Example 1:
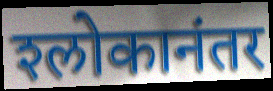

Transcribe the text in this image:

श्लोकानंतर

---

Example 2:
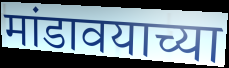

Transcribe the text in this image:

मांडावयाच्या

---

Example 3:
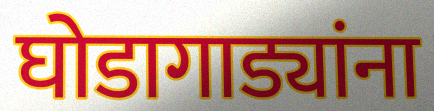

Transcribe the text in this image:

घोडागाड्यांना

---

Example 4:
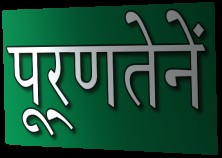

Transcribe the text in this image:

पूर्णतेनें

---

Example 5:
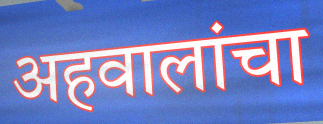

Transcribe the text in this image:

अहवालांचा